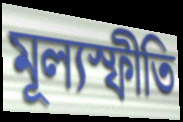
মূল্যস্ফীতি